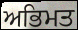
ਅਭਿਮਤ